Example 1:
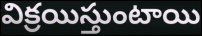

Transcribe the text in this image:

విక్రయిస్తుంటాయి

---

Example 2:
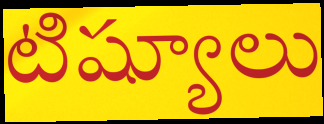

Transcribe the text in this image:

టిష్యూలు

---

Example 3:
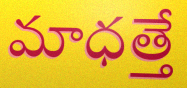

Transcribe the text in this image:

మాధత్తే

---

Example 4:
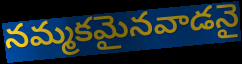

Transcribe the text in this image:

నమ్మకమైనవాడనై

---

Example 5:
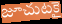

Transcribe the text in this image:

జూచుటకై